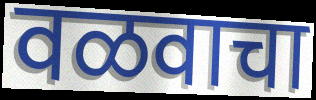
वळवाचा